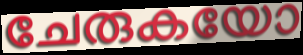
ചേരുകയോ